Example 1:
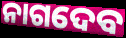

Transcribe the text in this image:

ନାଗଦେବ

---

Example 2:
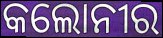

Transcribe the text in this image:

କଲୋନୀର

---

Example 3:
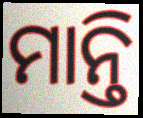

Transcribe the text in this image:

ମାନ୍ତି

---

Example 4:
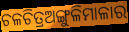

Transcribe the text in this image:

ଚଳଚିତ୍ରଅଙ୍ଗୁଳିମାଳାର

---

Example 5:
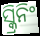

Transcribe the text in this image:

ସ୍କ୍ରିନିଂ